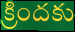
క్రిందకు